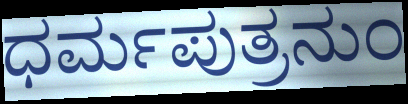
ಧರ್ಮಪುತ್ರನುಂ